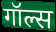
गॉल्स